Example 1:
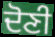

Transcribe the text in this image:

ਦੋਣੀ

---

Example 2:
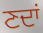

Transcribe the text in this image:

ਣਦਾਂ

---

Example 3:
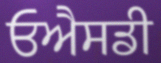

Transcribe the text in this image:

ਓਐਸਡੀ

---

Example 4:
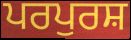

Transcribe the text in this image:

ਪਰਪੁਰਸ਼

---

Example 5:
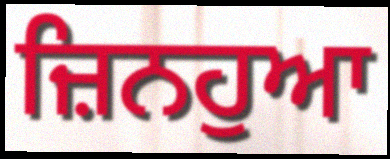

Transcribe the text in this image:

ਜ਼ਿਨਹੁਆ